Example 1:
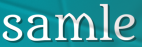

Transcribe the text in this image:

samle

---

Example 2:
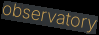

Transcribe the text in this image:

observatory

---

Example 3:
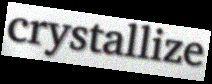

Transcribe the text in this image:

crystallize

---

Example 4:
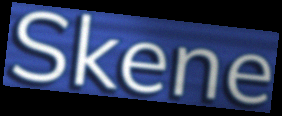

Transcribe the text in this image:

Skene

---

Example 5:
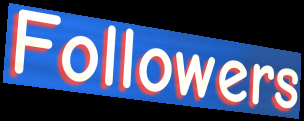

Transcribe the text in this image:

Followers